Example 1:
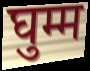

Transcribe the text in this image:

घुम्म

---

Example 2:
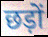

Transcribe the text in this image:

छड़ों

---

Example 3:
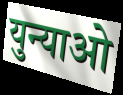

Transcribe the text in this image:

युन्याओ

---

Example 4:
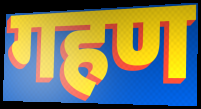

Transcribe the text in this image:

गहण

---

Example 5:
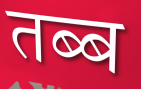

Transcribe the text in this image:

तब्ब